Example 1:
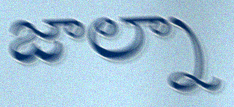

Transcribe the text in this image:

జాల్నా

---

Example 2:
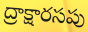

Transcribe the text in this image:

ద్రాక్షారసపు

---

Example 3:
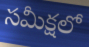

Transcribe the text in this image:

సమీక్షలో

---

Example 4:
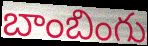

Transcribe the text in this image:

బాంబింగు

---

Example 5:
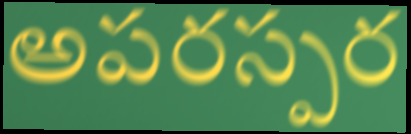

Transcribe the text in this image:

అపరస్పర